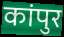
कांपुर